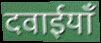
दवाईयाँ